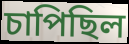
চাপিছিল